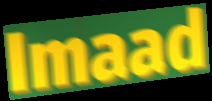
Imaad